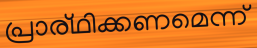
പ്രാര്ഥിക്കണമെന്ന്